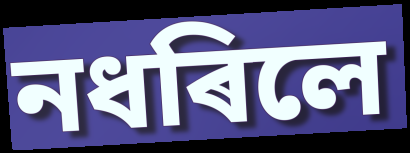
নধৰিলে